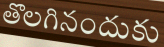
తొలగినందుకు